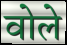
वोले